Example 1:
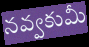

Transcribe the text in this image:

నవ్వకుమీ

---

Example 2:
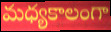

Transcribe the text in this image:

మధ్యకాలంగా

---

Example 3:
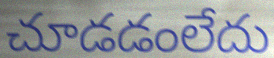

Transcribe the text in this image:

చూడడంలేదు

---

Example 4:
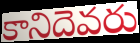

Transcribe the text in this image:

కానిదెవరు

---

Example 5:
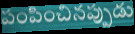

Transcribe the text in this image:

పంపించినప్పుడు